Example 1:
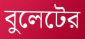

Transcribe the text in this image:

বুলেটের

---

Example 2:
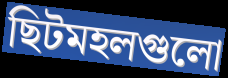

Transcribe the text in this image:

ছিটমহলগুলো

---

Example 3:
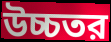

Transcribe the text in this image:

উচ্চতর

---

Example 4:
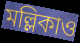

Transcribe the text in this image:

মল্লিকাও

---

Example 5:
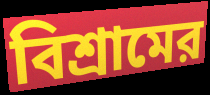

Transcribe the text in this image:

বিশ্রামের